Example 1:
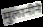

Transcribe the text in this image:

मुलानीने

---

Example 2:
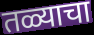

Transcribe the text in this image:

तळ्याचा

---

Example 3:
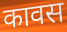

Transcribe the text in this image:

कावस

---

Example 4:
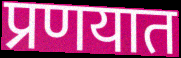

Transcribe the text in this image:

प्रणयात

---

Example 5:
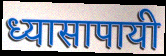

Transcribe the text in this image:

ध्यासापायी